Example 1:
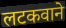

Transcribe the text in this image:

लटकवाने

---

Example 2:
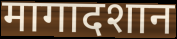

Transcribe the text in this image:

मागादशान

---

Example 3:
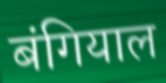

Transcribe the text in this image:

बंगियाल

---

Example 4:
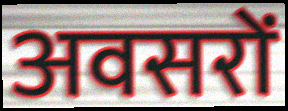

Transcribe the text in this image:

अवसरों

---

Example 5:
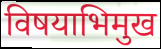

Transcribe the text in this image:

विषयाभिमुख